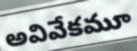
అవివేకమూ